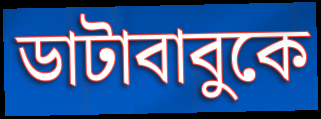
ডাটাবাবুকে